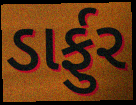
ડાર્ફુર